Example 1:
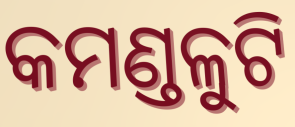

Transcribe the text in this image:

କମଣ୍ଡଳୁଟି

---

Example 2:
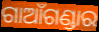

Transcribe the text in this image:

ଗାଆଁଗଣ୍ଡାର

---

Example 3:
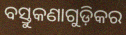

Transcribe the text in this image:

ବସ୍ତୁକଣାଗୁଡ଼ିକର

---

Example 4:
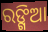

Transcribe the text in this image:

ରଙ୍ଗିଆ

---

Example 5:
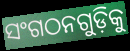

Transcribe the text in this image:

ସଂଗଠନଗୁଡ଼ିକୁ